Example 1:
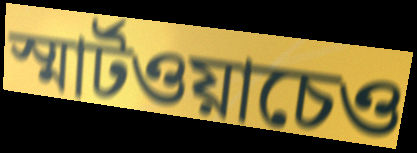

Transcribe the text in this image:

স্মার্টওয়াচেও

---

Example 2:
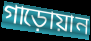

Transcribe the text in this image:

গাড়োয়ান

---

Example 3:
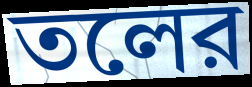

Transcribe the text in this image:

তলের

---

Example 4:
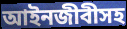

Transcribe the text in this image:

আইনজীবীসহ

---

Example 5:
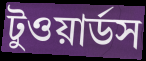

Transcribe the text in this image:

টুওয়ার্ডস